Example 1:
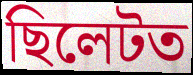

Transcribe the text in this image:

ছিলেটত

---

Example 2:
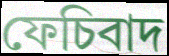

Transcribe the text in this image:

ফেচিবাদ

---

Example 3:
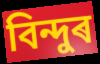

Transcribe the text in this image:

বিন্দুৰ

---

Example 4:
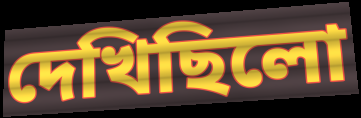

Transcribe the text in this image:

দেখিছিলো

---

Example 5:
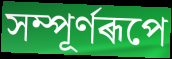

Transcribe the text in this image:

সম্পূৰ্ণৰূপে